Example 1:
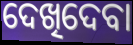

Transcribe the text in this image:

ଦେଖିଦେବା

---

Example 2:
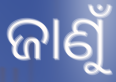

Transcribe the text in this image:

ଜାଣୁଁ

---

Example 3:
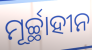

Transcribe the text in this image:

ମୂର୍ଚ୍ଛାହୀନ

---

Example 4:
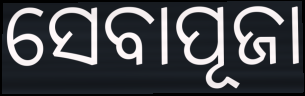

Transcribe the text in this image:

ସେବାପୂଜା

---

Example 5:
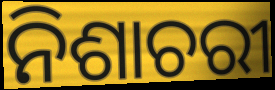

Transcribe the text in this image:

ନିଶାଚରୀ